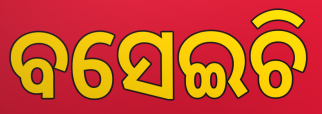
ବସେଇଚି